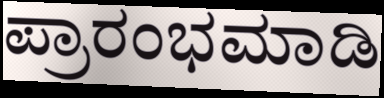
ಪ್ರಾರಂಭಮಾಡಿ